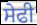
ਸੇਫੀ